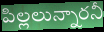
పిల్లలున్నారనీ